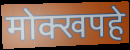
मोक्खपहे